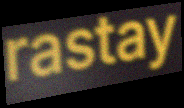
rastay